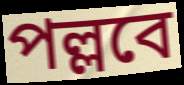
পল্লবে